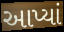
આપ્યાં